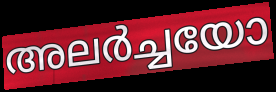
അലർച്ചയോ